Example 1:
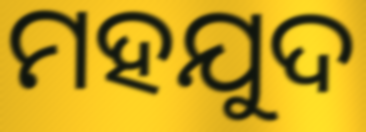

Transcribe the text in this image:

ମହଯୁଦ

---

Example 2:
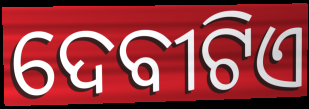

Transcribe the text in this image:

ଦେବୀଟିଏ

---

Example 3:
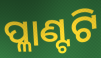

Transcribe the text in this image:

ପ୍ଳାଣ୍ଟଟି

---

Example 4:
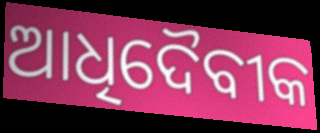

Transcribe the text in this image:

ଆଧିଦୈବୀକ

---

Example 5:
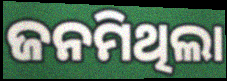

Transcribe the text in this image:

ଜନମିଥିଲା